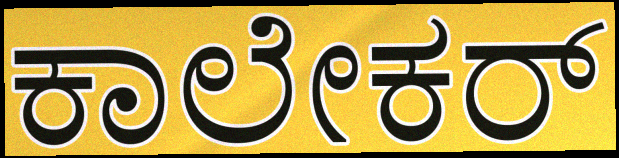
ಕಾಲೇಕರ್